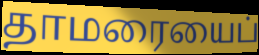
தாமரையைப்